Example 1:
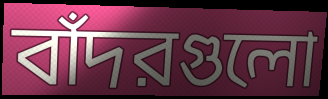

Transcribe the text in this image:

বাঁদরগুলো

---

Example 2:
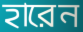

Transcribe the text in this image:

হারেন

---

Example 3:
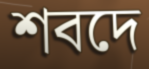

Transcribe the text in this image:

শবদে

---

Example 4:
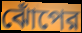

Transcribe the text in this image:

ঝোঁপের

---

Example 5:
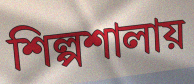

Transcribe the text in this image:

শিল্পশালায়